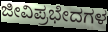
ಜೀವಿಪ್ರಭೇದಗಳ